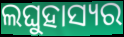
ଲଘୁହାସ୍ୟର